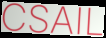
CSAIL